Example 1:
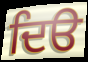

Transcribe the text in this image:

ਦਿੳ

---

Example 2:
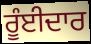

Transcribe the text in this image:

ਰੂੰਈਦਾਰ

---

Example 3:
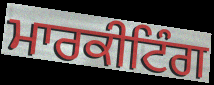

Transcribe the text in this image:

ਮਾਰਕੀਟਿੰਗ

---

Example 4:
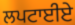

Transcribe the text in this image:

ਲਪਟਾਈਏ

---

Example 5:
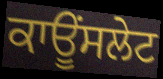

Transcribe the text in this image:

ਕਾਊਂਸਲੇਟ